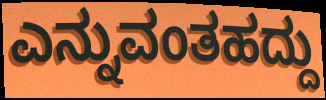
ಎನ್ನುವಂತಹದ್ದು